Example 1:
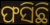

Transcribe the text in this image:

ଫସିଛି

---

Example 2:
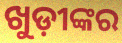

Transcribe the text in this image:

ଖୁଡ଼ୀଙ୍କର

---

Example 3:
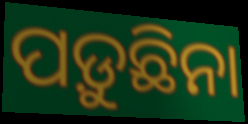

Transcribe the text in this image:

ପଡ଼ୁଛିନା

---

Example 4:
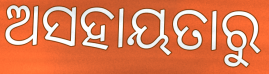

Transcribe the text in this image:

ଅସହାୟତାରୁ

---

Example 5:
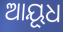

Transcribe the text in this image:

ଆୟୂଧ